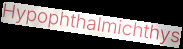
Hypophthalmichthys